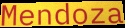
Mendoza